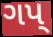
ગપ્